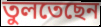
তুলতেছেন